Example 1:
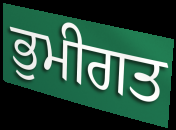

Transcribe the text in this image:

ਭੁਮੀਗਤ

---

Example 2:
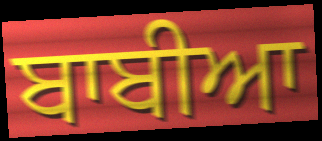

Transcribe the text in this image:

ਬਾਬੀਆ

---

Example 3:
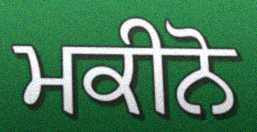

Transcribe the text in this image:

ਮਕੀਨੋ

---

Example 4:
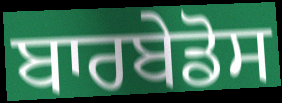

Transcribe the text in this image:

ਬਾਰਬੇਡੋਸ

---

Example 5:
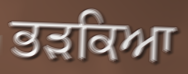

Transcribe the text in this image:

ਭੜਕਿਆ